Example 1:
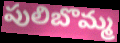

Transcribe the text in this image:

పులిబొమ్మ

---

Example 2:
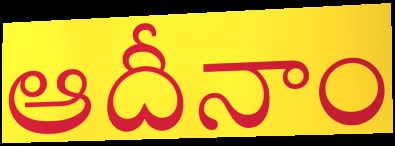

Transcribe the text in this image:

ఆదీనాం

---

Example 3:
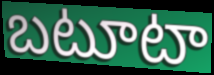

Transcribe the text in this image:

బటూటా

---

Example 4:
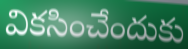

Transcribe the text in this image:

వికసించేందుకు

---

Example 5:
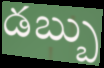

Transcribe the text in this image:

డబ్బు